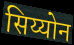
सिय्योन